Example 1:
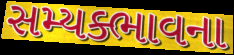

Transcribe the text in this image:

સમ્યક્ભાવના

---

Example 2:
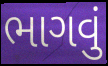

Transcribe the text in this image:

ભાગવું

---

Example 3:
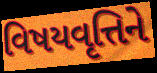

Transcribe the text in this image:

વિષયવૃત્તિને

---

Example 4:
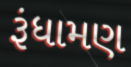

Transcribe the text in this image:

રૂંધામણ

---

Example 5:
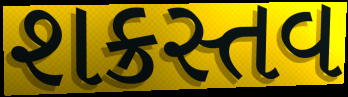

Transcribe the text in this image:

શક્રસ્તવ